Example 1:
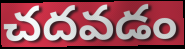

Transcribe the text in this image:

చదవడం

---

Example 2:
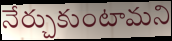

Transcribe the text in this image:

నేర్చుకుంటామని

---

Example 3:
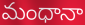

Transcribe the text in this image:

మంధానా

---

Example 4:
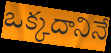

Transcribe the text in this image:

ఒక్కదానినే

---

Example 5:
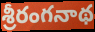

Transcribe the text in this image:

శ్రీరంగనాథ